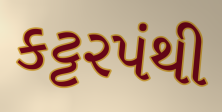
કટ્ટરપંથી